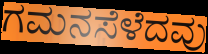
ಗಮನಸೆಳೆದವು